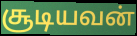
சூடியவன்